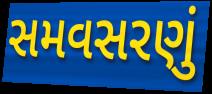
સમવસરણું